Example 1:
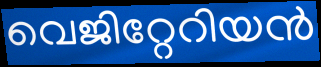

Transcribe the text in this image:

വെജിറ്റേറിയൻ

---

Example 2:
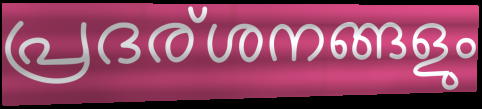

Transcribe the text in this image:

പ്രദര്ശനങ്ങളും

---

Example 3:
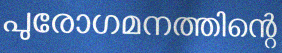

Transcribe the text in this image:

പുരോഗമനത്തിന്റെ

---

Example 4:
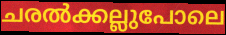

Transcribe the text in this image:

ചരൽക്കല്ലുപോലെ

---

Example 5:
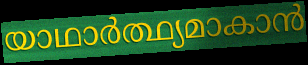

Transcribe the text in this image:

യാഥാർത്ഥ്യമാകാൻ